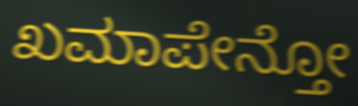
ಖಮಾಪೇನ್ತೋ